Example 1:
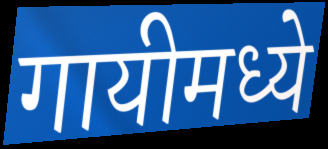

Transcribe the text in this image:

गायीमध्ये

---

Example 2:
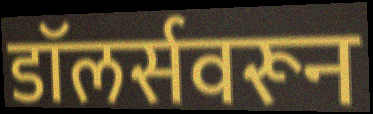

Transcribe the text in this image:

डॉलर्सवरून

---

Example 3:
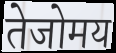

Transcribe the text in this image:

तेजोमय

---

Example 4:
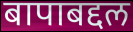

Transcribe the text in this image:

बापाबद्दल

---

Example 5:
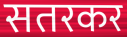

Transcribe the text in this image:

सतरकर